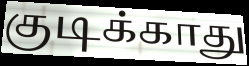
குடிக்காது